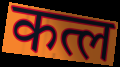
कत्ल